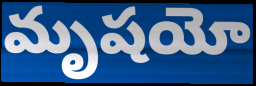
మృషయో